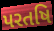
પરતષિ